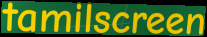
tamilscreen